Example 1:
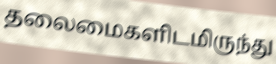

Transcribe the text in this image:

தலைமைகளிடமிருந்து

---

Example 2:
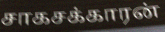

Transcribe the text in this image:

சாகசக்காரன்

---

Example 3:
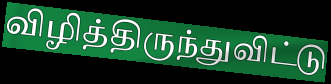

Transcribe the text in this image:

விழித்திருந்துவிட்டு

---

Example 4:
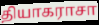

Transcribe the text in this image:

தியாகராசா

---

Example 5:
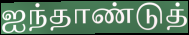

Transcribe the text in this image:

ஐந்தாண்டுத்